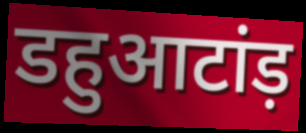
डहुआटांड़